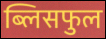
ब्लिसफुल